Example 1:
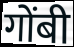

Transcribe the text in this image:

गोंबी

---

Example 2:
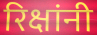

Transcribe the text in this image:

रिक्षांनी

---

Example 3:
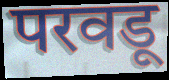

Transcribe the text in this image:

परवडू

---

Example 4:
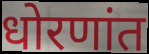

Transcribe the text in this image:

धोरणांत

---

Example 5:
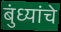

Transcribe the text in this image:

बुंध्यांचे